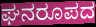
ಘನರೂಪದ